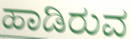
ಹಾಡಿರುವ